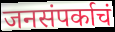
जनसंपर्काचं